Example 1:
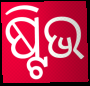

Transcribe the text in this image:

ଷ୍ଟିଭ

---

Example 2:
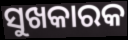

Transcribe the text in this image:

ସୁଖକାରକ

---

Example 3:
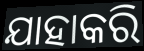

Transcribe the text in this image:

ଯାହାକରି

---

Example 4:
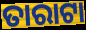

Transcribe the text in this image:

ତାରାଟା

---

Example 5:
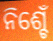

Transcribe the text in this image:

ନିଶ୍ଚେଁ